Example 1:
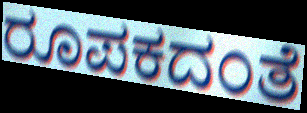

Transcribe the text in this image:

ರೂಪಕದಂತೆ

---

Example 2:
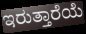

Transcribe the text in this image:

ಇರುತ್ತಾರೆಯೆ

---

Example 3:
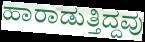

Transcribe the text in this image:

ಹಾರಾಡುತ್ತಿದ್ದವು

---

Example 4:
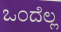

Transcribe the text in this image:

ಒಂದೆಲ್ಲ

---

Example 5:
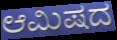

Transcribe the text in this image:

ಆಮಿಷದ